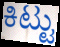
ಕಿಟ್ಟು